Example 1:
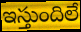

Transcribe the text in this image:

ఇస్తుందిలే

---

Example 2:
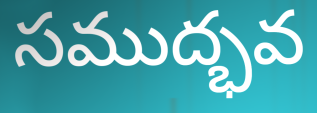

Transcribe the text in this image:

సముద్భవ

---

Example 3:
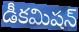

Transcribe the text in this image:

డీకమిషన్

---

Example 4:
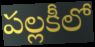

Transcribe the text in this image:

పల్లకీలో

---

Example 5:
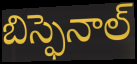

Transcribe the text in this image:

బిస్ఫెనాల్